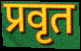
प्रवृत